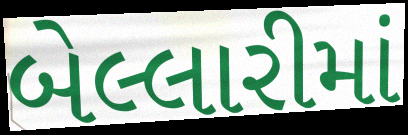
બેલ્લારીમાં